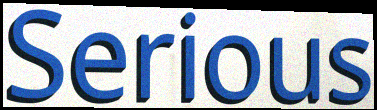
Serious